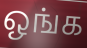
ஒங்க